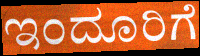
ಇಂದೂರಿಗೆ